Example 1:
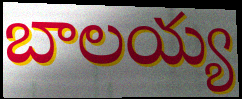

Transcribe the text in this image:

బాలయ్య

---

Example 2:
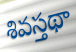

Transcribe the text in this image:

శివస్తథా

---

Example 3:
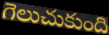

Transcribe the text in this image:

గెలుచుకుంది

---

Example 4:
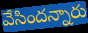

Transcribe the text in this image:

వేసిందన్నారు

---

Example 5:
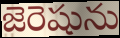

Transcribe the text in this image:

జెరెషును